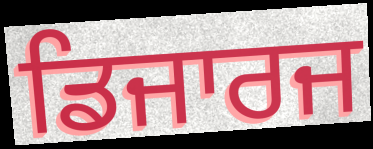
ਡਿਜਾਰਜ